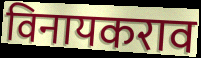
विनायकराव